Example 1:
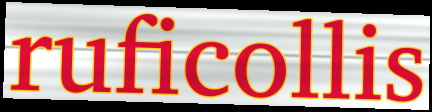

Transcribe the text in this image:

ruficollis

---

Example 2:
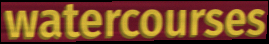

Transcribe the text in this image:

watercourses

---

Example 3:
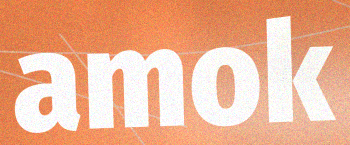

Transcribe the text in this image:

amok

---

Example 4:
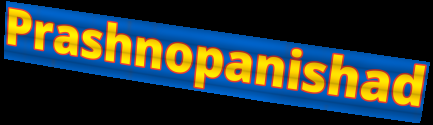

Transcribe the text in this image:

Prashnopanishad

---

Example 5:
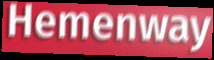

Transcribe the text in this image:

Hemenway